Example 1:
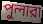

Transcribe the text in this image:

পুলারা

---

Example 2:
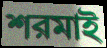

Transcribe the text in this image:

শরমাই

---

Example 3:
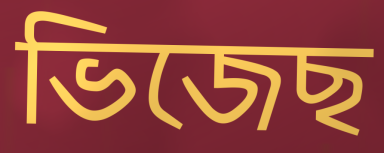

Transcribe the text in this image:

ভিজেছ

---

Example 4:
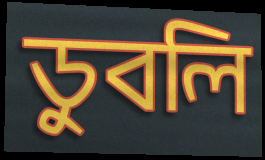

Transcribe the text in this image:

ডুবলি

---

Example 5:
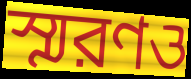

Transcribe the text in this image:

স্মরণও